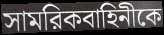
সামরিকবাহিনীকে